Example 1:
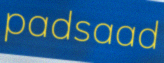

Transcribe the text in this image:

padsaad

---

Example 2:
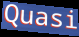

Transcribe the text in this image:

Quasi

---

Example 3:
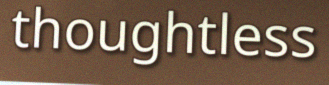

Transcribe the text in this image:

thoughtless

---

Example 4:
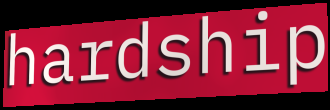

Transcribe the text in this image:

hardship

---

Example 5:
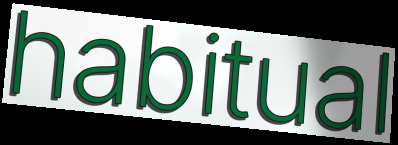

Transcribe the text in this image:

habitual